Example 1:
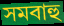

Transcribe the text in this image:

সমবাহু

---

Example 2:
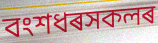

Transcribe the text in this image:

বংশধৰসকলৰ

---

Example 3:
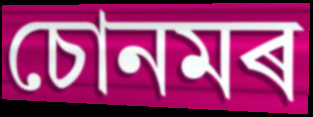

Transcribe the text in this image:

চোনমৰ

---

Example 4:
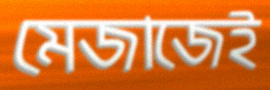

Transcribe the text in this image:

মেজাজেই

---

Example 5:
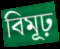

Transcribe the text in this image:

বিমূঢ়